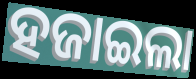
ହଜାଇଲା